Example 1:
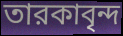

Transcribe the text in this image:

তারকাবৃন্দ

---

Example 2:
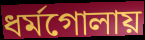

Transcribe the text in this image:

ধর্মগোলায়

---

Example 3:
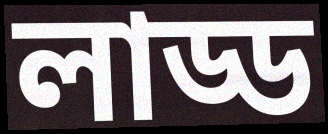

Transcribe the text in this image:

লাড্ড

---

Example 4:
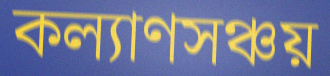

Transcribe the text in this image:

কল্যাণসঞ্চয়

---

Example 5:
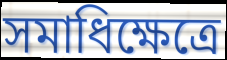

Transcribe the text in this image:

সমাধিক্ষেত্রে